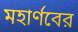
মহার্ণবের